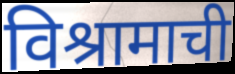
विश्रामाची